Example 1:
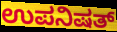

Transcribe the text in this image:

ಉಪನಿಷತ್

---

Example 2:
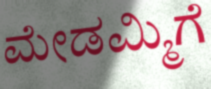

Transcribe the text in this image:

ಮೇಡಮ್ಮಿಗೆ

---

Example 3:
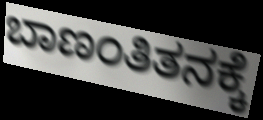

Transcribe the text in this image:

ಬಾಣಂತಿತನಕ್ಕೆ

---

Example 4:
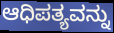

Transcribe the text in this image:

ಆಧಿಪತ್ಯವನ್ನು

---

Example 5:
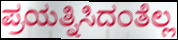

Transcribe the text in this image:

ಪ್ರಯತ್ನಿಸಿದಂತೆಲ್ಲ